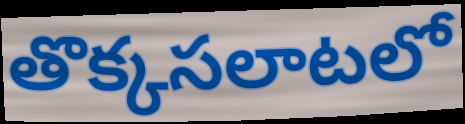
తొక్కసలాటలో